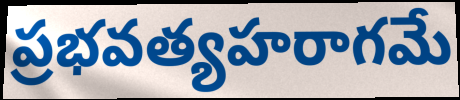
ప్రభవత్యహరాగమే